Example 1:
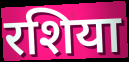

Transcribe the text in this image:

रशिया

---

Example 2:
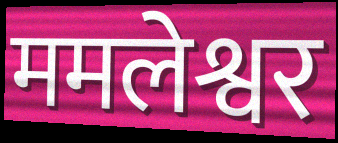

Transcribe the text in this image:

ममलेश्वर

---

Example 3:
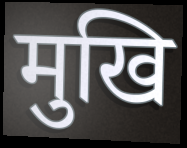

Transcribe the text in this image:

मुखि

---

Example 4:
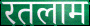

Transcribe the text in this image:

रतलाम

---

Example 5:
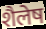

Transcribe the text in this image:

शैलेष